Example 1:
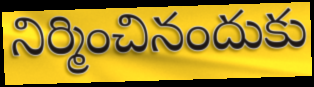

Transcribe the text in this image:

నిర్మించినందుకు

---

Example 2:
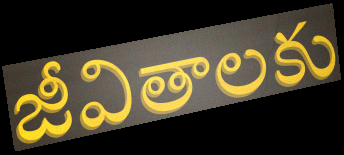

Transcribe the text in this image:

జీవితాలకు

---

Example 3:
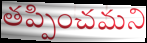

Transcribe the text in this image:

తప్పించమని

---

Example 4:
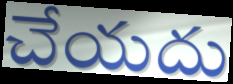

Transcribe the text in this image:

చేయదు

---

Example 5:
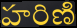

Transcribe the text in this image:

హరిణి